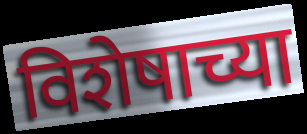
विशेषाच्या